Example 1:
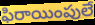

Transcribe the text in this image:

ఫిరాయింపులే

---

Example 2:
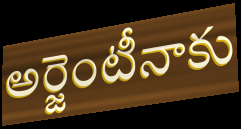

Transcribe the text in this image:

అర్జెంటీనాకు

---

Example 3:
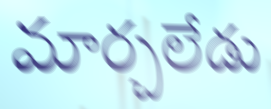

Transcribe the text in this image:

మార్చలేడు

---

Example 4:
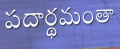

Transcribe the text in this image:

పదార్థమంతా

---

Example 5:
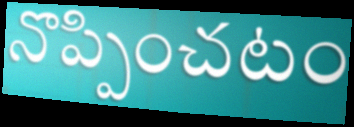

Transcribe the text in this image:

నొప్పించటం